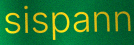
sispann